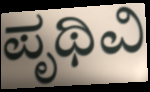
ಪೃಥಿವಿ